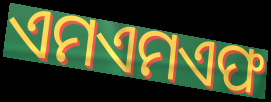
ଏମଏମଏଫ